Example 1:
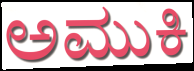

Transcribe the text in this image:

ಅಮುಕಿ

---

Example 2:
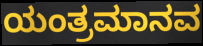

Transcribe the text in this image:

ಯಂತ್ರಮಾನವ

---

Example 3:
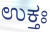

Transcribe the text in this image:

ಉಕ್ತಃ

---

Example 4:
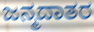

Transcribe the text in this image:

ಜನ್ಮದಾತರ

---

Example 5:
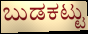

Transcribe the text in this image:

ಬುಡಕಟ್ಟು